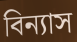
বিন্যাস